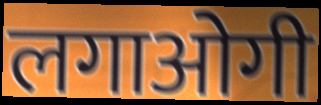
लगाओगी